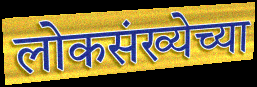
लोकसंख्येच्या